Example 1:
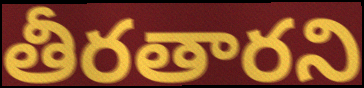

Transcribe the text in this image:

తీరతారని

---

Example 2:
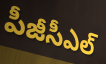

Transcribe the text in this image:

పీజీసీఎల్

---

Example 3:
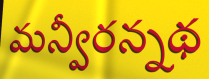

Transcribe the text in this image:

మన్వీరన్నథ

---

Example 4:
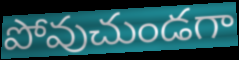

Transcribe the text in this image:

పోవుచుండగా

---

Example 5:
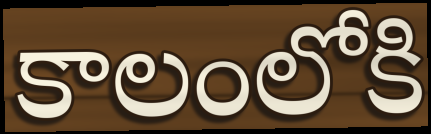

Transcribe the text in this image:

కాలంలోకి